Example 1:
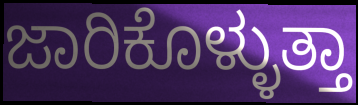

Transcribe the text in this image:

ಜಾರಿಕೊಳ್ಳುತ್ತಾ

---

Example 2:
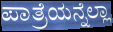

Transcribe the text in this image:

ಪಾತ್ರೆಯನ್ನೆಲ್ಲಾ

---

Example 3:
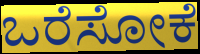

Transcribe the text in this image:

ಒರೆಸೋಕೆ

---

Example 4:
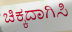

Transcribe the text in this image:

ಚಿಕ್ಕದಾಗಿಸಿ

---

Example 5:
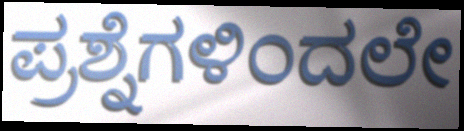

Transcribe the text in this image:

ಪ್ರಶ್ನೆಗಳಿಂದಲೇ